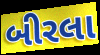
બીરલા